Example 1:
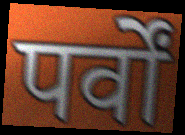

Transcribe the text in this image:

पर्वों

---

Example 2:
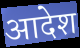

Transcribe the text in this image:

आदेश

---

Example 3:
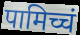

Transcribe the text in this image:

पामिच्चं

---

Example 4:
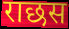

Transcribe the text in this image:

राछस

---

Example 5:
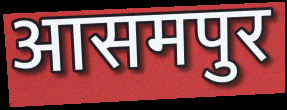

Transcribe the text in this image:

आसमपुर